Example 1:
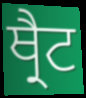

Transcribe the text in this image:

ਥ੍ਰੈਟ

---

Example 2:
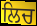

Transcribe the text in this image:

ਲਿਚ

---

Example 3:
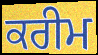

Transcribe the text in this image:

ਕਰੀਮ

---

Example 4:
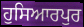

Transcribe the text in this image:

ਹੁਸਿਆਰਪੁਰ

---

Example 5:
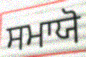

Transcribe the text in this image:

ਸਮਾਯੋ